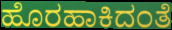
ಹೊರಹಾಕಿದಂತೆ